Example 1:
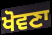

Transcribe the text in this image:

ਖੋਵਣਾ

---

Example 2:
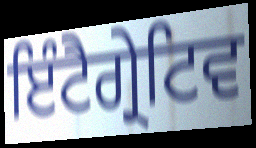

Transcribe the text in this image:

ਇੰਟੈਗ੍ਰੇਟਿਵ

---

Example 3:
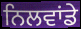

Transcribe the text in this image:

ਨਿਲਵਾਂਡੇ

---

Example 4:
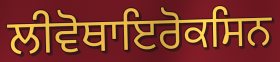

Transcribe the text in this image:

ਲੀਵੋਥਾਇਰੋਕਸਿਨ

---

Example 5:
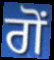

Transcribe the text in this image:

ਗੋਂ